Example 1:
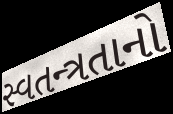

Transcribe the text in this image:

સ્વતન્ત્રતાનો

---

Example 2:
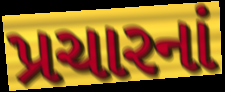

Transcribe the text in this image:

પ્રચારનાં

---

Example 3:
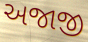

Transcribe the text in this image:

અજાજી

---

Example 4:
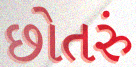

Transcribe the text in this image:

છોતરું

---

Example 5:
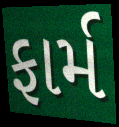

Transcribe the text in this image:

ફાર્મ